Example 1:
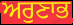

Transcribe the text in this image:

ਅਰੁਣਾਭ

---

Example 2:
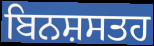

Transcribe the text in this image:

ਬਿਨਸ਼ਸਤਹ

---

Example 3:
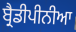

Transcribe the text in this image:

ਬ੍ਰੈਡੀਪੀਨੀਆ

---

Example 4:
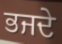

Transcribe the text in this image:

ਭਜਦੇ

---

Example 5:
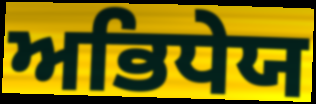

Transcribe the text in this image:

ਅਭਿਧੇਯ